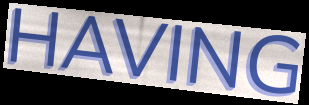
HAVING